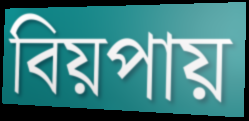
বিয়পায়